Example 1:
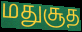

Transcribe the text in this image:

மதுசூத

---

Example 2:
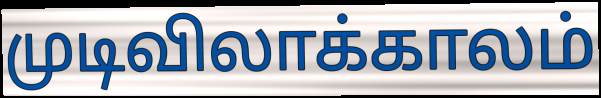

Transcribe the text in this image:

முடிவிலாக்காலம்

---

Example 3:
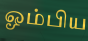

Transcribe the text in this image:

ஓம்பிய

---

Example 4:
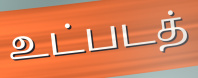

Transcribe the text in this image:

உட்படத்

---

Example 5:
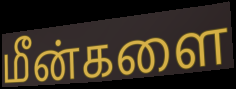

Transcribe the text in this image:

மீன்களை